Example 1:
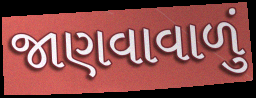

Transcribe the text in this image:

જાણવાવાળું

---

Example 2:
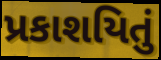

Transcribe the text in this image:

પ્રકાશયિતું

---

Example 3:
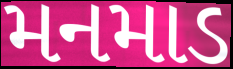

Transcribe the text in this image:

મનમાડ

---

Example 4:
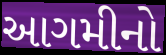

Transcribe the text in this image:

આગમીનો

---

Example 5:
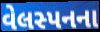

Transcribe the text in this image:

વેલસ્પનના